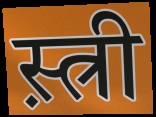
स़्त्री